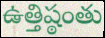
ఉత్తిష్ఠంతు